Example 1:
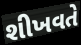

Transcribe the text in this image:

શીખવતે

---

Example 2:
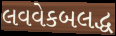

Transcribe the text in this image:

લવવેકબલદ્ધ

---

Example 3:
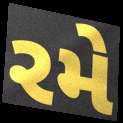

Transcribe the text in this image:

રમે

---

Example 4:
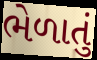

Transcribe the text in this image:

ભેળાતું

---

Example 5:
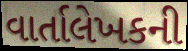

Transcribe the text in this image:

વાર્તાલેખકની